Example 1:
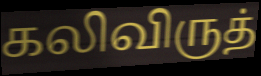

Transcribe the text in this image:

கலிவிருத்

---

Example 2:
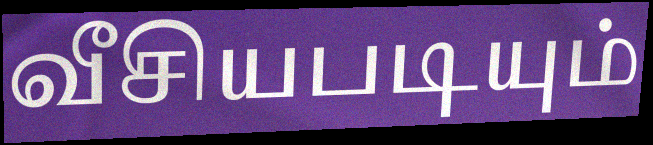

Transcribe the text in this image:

வீசியபடியும்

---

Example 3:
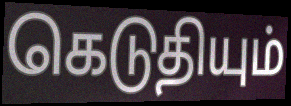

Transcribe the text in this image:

கெடுதியும்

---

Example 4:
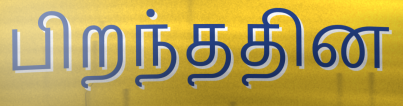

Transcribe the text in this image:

பிறந்ததின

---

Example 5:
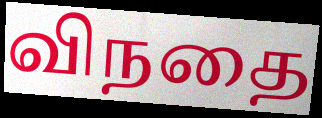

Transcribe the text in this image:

விநதை